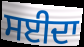
ਸਈਦਾ